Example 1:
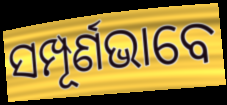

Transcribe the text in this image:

ସମ୍ପୂର୍ଣଭାବେ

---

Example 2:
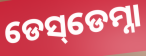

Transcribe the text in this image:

ଡେସ୍‌ଡେମ୍ନା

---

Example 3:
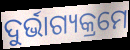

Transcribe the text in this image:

ଦୁର୍ଭାଗ୍ୟକ୍ରମେ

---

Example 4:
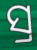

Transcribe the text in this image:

ସ୍ର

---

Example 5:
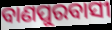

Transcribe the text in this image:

ବାଣପୁରବାସୀ